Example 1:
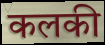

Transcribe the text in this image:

कलकी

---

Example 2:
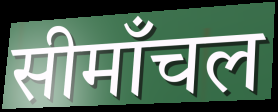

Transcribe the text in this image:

सीमाँचल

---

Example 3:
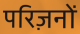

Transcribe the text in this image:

परिज़नों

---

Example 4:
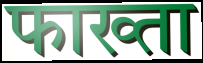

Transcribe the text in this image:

फाख्ता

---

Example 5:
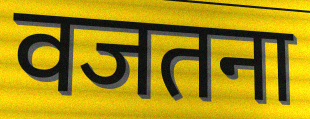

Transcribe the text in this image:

वजतना